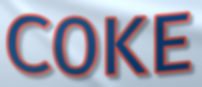
COKE